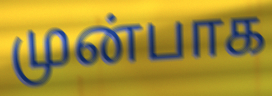
முன்பாக